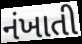
નંખાતી